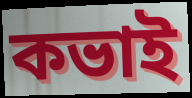
কভাই